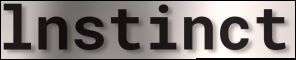
lnstinct